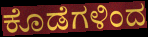
ಕೊಡೆಗಳಿಂದ